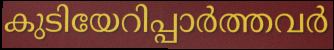
കുടിയേറിപ്പാർത്തവർ